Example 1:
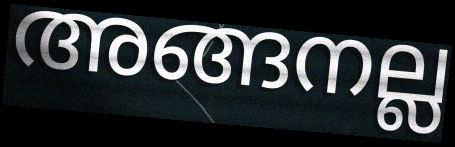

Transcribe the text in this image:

അങ്ങനല്ല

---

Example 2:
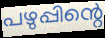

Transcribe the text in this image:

പഴുപ്പിന്റെ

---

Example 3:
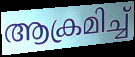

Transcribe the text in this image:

ആക്രമിച്ച്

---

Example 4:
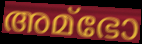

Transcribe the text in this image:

അമ്ഭോ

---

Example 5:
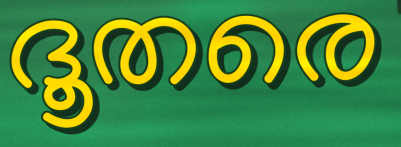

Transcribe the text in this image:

ദൂതരെ